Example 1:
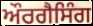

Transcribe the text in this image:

ਔਰਗੈਸਿੰਗ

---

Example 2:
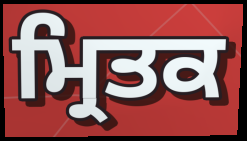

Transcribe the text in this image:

ਮ੍ਰਿਤਕ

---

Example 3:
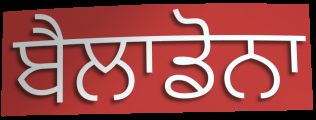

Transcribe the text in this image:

ਬੈਲਾਡੋਨਾ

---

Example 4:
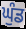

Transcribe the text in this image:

ਘੁੰਡ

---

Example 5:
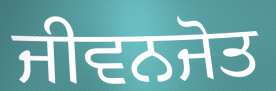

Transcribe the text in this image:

ਜੀਵਨਜੋਤ